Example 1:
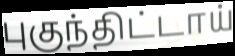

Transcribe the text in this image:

புகுந்திட்டாய்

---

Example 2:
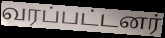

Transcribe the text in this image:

வரப்பட்டனர்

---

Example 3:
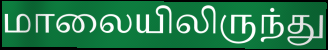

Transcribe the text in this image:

மாலையிலிருந்து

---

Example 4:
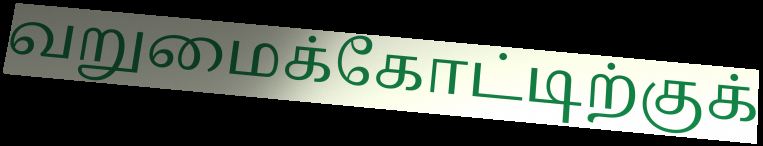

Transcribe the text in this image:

வறுமைக்கோட்டிற்குக்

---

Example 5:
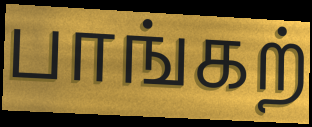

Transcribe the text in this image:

பாங்கற்